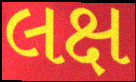
લક્ષ